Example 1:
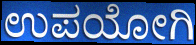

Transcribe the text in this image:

ಉಪಯೋಗಿ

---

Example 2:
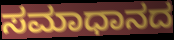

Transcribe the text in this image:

ಸಮಾಧಾನದ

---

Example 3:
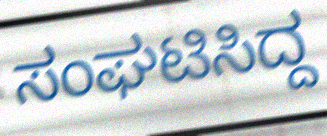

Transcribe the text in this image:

ಸಂಘಟಿಸಿದ್ದ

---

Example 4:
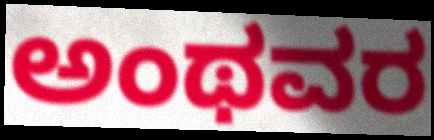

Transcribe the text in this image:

ಅಂಥವರ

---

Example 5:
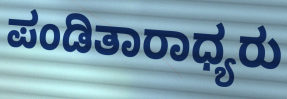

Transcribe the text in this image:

ಪಂಡಿತಾರಾಧ್ಯರು